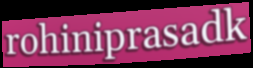
rohiniprasadk